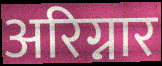
अरिग्नार